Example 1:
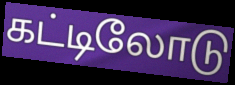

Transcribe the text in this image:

கட்டிலோடு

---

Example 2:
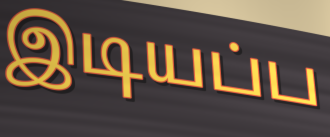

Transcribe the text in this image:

இடியப்ப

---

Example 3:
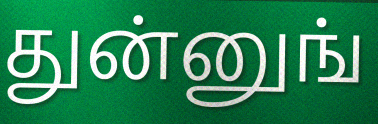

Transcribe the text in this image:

துன்னுங்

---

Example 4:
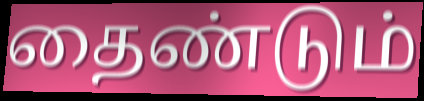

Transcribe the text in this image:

தைண்டும்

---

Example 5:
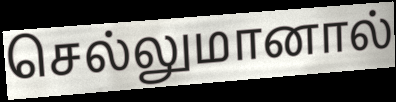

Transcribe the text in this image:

செல்லுமானால்